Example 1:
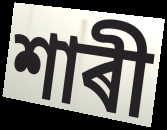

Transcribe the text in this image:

শাৰী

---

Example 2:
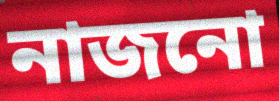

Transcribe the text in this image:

নাজনো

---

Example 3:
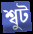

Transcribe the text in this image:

শ্বুট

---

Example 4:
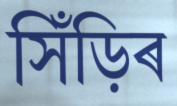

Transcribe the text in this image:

সিঁড়িৰ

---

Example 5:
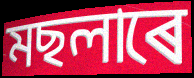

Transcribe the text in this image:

মছলাৰে